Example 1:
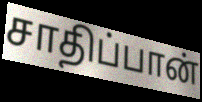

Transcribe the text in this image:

சாதிப்பான்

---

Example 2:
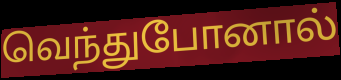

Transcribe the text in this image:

வெந்துபோனால்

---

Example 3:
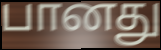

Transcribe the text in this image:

பானது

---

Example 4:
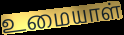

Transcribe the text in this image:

உமையாள்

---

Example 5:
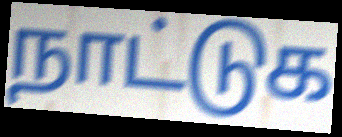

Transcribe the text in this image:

நாட்டுக